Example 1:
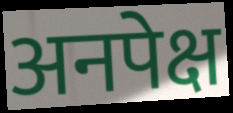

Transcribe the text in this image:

अनपेक्ष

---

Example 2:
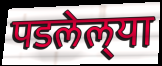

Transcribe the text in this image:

पडलेल्या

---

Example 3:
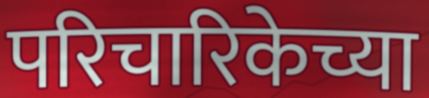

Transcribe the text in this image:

परिचारिकेच्या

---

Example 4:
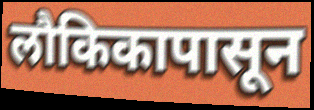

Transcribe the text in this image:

लौकिकापासून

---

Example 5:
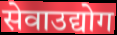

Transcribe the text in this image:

सेवाउद्योग